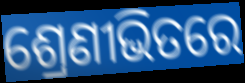
ଶ୍ରେଣୀଭିତରେ